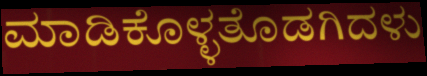
ಮಾಡಿಕೊಳ್ಳತೊಡಗಿದಳು